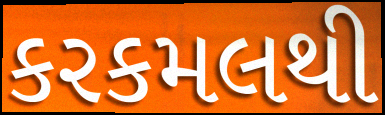
કરકમલથી